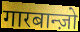
गारबान्ज़ो